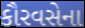
કૌરવસેના